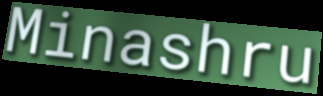
Minashru